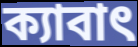
ক্যাবাৎ